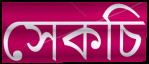
সেকচি